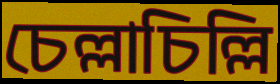
চেল্লাচিল্লি